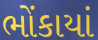
ભોંકાયાં